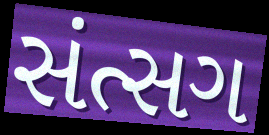
સંત્સગ